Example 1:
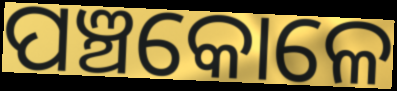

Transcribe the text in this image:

ପଞ୍ଚକୋଳେ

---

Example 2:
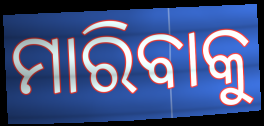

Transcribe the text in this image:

ମାରିବାକୁ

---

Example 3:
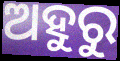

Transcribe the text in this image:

ଅହୁରୁ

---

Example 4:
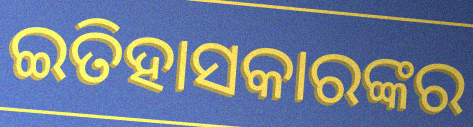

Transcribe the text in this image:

ଇତିହାସକାରଙ୍କର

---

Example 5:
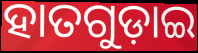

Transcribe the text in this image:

ହାତଗୁଡ଼ାଇ